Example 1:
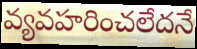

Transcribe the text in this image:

వ్యవహరించలేదనే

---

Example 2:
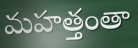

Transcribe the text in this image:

మహత్తంతా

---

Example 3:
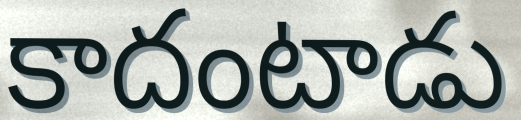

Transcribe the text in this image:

కాదంటాడు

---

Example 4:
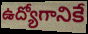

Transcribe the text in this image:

ఉద్యోగానికే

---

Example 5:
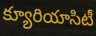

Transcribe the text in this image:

క్యూరియాసిటీ